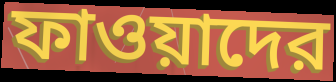
ফাওয়াদের